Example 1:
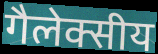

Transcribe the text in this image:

गैलेक्सीय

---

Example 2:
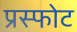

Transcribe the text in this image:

प्रस्फोट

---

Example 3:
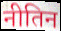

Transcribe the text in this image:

नीतिन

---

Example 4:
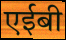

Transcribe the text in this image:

एईबी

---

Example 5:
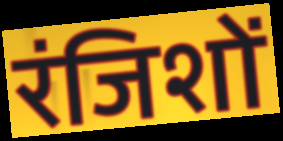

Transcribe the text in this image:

रंजिशों